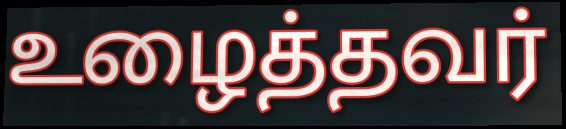
உழைத்தவர்